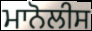
ਮਾਨੋਲੀਸ